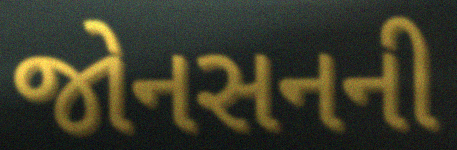
જોનસનની